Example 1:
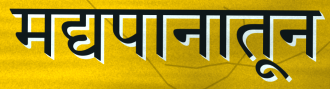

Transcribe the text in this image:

मद्यपानातून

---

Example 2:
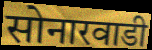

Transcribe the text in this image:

सोनारवाडी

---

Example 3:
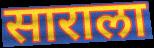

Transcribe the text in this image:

साराला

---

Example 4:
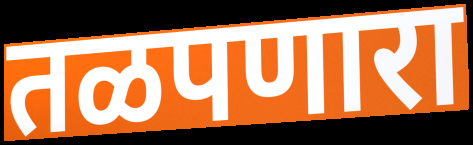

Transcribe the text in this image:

तळपणारा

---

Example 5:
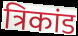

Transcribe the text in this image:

त्रिकांड